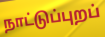
நாட்டுப்புறப்